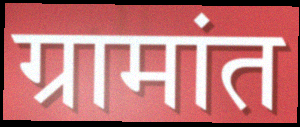
ग्रामांत